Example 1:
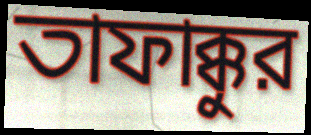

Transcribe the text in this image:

তাফাক্কুর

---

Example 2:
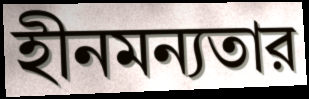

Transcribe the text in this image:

হীনমন্যতার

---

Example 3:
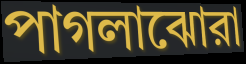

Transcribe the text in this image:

পাগলাঝোরা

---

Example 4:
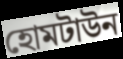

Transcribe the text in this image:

হোমটাউন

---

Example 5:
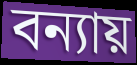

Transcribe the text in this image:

বন্যায়